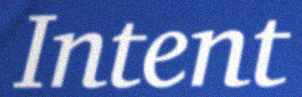
Intent